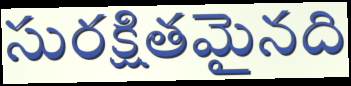
సురక్షితమైనది